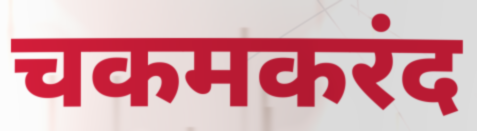
चकमकरंद